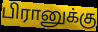
பிரானுக்கு